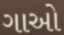
ગાઓ